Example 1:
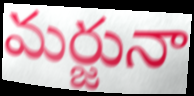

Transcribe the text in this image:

మర్జునా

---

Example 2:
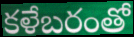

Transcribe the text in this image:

కళేబరంతో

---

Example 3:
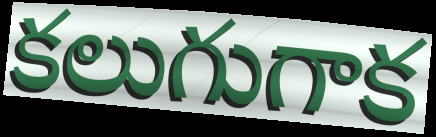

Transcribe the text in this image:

కలుగుగాక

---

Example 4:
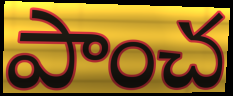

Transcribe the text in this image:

పాంచ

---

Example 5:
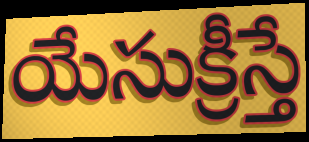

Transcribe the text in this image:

యేసుక్రీస్తే